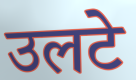
उलटे